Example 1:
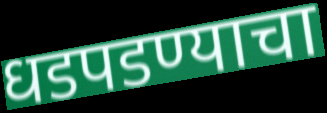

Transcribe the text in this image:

धडपडण्याचा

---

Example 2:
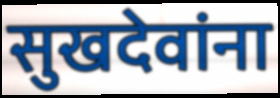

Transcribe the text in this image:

सुखदेवांना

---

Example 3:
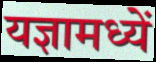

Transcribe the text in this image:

यज्ञामध्यें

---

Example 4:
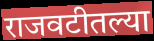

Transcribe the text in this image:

राजवटीतल्या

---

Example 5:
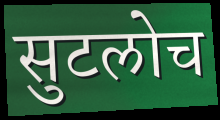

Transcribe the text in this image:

सुटलोच